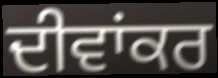
ਦੀਵਾਂਕਰ